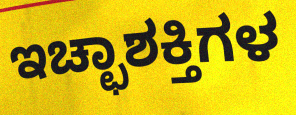
ಇಚ್ಛಾಶಕ್ತಿಗಳ